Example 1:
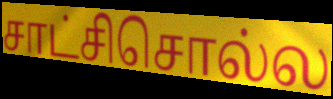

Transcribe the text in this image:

சாட்சிசொல்ல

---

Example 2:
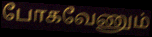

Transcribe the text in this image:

போகவேணும்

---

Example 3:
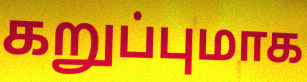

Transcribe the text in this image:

கறுப்புமாக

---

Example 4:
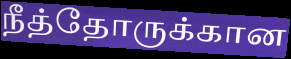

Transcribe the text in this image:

நீத்தோருக்கான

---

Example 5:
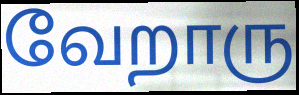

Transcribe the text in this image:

வேறாரு